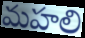
మహలి